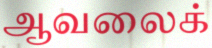
ஆவலைக்